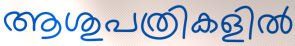
ആശുപത്രികളിൽ